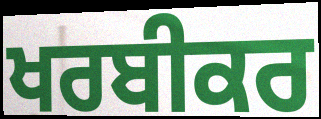
ਖਰਬੀਕਰ